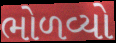
ભોળવ્યો